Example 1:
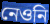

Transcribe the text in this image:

নেওনি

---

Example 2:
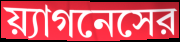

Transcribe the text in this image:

য়্যাগনেসের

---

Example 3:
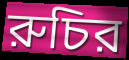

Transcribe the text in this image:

রুচির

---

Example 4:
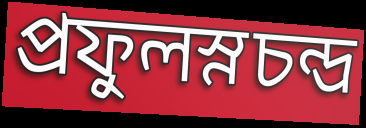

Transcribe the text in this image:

প্রফুলস্নচন্দ্র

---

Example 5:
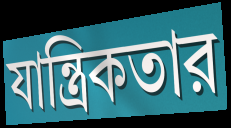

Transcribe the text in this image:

যান্ত্রিকতার